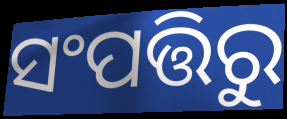
ସଂପତ୍ତିରୁ